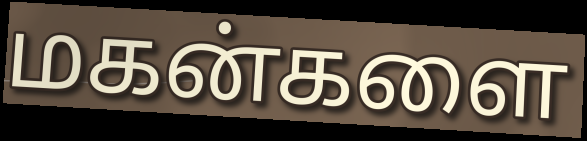
மகன்களை